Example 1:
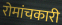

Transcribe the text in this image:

रोमांचकारी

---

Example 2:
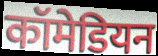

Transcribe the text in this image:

कॉमेडियन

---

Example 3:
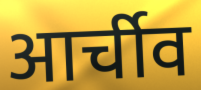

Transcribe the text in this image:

आर्चीव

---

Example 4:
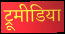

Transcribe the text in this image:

ट्रूमीडिया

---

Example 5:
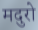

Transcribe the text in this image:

मदुरो